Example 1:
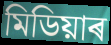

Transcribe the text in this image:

মিডিয়াৰ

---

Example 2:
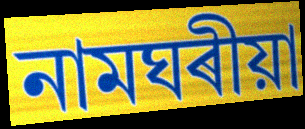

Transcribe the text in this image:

নামঘৰীয়া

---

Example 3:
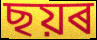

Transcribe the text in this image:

ছয়ৰ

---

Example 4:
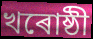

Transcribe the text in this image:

খৰোষ্ঠী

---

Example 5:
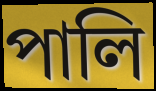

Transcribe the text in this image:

পালি